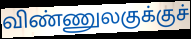
விண்ணுலகுக்குச்